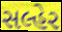
સલ્હેર